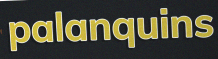
palanquins